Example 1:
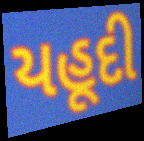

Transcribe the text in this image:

યહૂદી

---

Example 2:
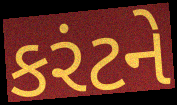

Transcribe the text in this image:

કરંટને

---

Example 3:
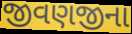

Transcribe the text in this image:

જીવણજીના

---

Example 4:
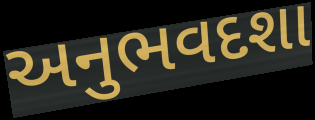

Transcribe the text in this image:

અનુભવદશા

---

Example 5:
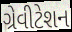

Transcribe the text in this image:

ગ્રેવીટેશન